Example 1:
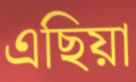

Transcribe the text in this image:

এছিয়া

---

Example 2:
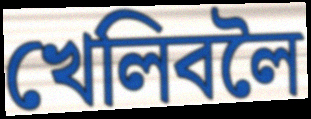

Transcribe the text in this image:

খেলিবলৈ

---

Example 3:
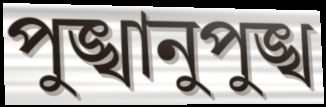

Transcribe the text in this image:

পুঙ্খানুপুঙ্খ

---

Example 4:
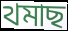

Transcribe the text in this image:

থমাছ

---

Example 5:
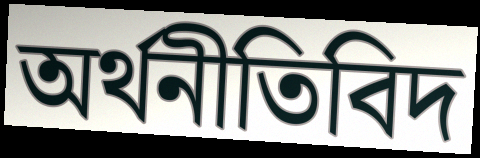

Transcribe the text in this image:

অৰ্থনীতিবিদ